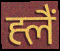
ह्लैं